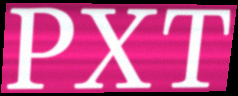
PXT